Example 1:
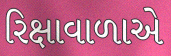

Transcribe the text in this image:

રિક્ષાવાળાએ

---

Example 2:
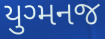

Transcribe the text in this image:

યુગ્મનજ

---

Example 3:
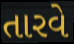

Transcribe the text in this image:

તારવે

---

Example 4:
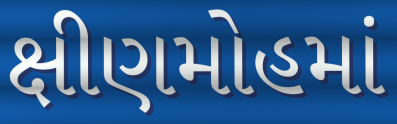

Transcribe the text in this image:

ક્ષીણમોહમાં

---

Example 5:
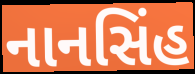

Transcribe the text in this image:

નાનસિંહ